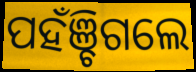
ପହଁଞ୍ଚିଗଲେ